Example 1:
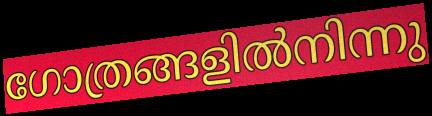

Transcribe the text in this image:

ഗോത്രങ്ങളിൽനിന്നു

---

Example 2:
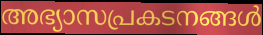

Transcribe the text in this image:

അഭ്യാസപ്രകടനങ്ങൾ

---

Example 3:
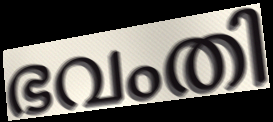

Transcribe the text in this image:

ഭവംതി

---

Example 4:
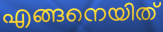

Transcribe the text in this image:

എങ്ങനെയിത്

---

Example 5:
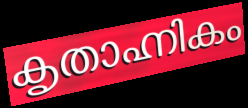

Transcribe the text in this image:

കൃതാഹ്നികം